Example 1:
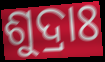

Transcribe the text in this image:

ଶୁଦ୍ରାଃ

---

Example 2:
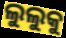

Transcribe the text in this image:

ଲୁଲୁକୁ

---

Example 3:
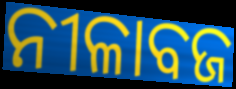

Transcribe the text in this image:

ନୀଳାବଜ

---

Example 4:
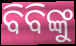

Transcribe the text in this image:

ବିବିଙ୍କୁ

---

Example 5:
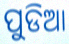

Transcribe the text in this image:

ପୁଡିଆ